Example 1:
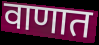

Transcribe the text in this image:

वाणात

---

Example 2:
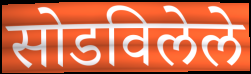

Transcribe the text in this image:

सोडविलेले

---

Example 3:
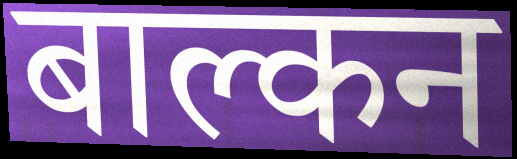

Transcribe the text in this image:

बाल्कन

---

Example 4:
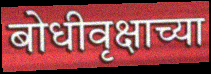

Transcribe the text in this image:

बोधीवृक्षाच्या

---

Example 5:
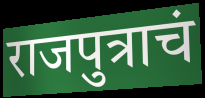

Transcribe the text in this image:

राजपुत्राचं